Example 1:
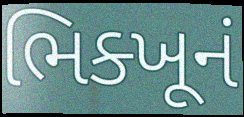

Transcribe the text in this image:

ભિક્ખૂનં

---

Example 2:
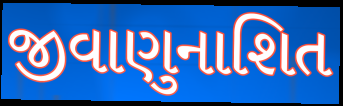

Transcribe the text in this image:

જીવાણુનાશિત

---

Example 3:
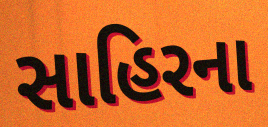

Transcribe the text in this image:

સાહિરના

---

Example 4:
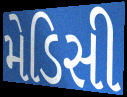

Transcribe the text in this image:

મેડિસી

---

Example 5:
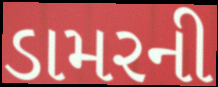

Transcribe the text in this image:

ડામરની